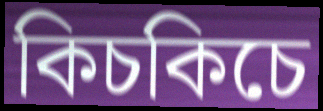
কিচকিচে